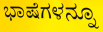
ಭಾಷೆಗಳನ್ನೂ